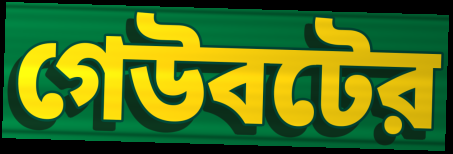
গেউবটের